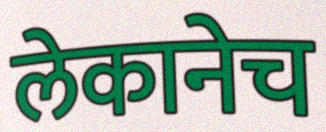
लेकानेच